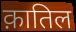
क़ातिल